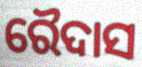
ରୈଦାସ